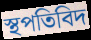
স্থপতিবিদ